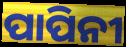
ପାପିନୀ